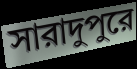
সারাদুপুরে